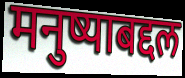
मनुष्याबद्दल